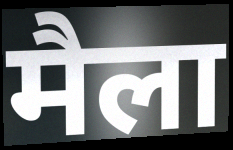
मैला